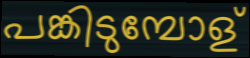
പങ്കിടുമ്പോള്